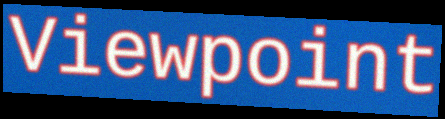
Viewpoint